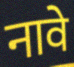
नावे